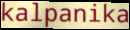
kalpanika